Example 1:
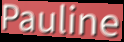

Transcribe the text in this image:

Pauline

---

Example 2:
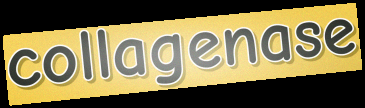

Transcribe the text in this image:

collagenase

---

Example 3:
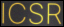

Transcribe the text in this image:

ICSR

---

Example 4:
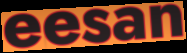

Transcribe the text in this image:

eesan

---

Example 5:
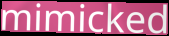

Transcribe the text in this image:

mimicked